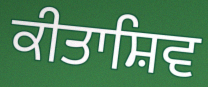
ਕੀਤਾਸ਼ਿਵ